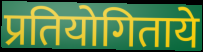
प्रतियोगिताये